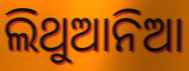
ଲିଥୁଆନିଆ